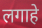
लगाहे